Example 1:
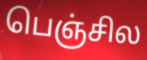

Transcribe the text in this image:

பெஞ்சில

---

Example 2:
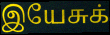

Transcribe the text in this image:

இயேசுக்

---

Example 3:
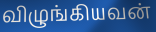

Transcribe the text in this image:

விழுங்கியவன்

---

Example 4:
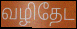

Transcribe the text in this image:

வழிதேட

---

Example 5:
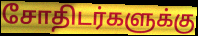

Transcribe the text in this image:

சோதிடர்களுக்கு